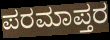
ಪರಮಾಪ್ತರ